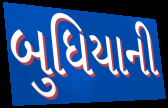
બુધિયાની